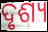
ଦୃଶ୍ଯ